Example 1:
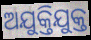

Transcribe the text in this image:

ଅଯୁକ୍ତିଯୁକ୍ତ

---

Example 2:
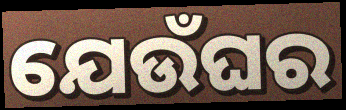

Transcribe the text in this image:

ଯେଉଁଘର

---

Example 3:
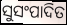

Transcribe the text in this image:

ସୁସଂପାଦିତ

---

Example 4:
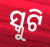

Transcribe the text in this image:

ସ୍କୁଟି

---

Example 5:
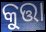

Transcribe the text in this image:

କୁତ୍ତା